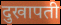
दुखापती